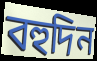
বহুদিন